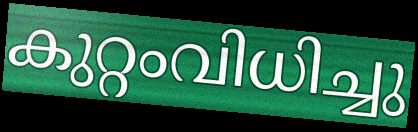
കുറ്റംവിധിച്ചു